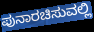
ಪುನಾರಚಿಸುವಲ್ಲಿ